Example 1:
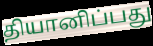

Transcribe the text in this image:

தியானிப்பது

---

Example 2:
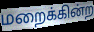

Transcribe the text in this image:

மறைக்கின்ற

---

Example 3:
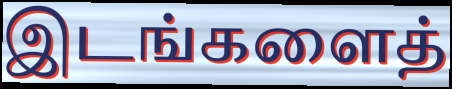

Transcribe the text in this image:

இடங்களைத்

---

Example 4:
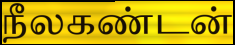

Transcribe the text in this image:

நீலகண்டன்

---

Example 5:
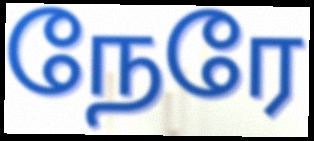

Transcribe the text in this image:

நேரே